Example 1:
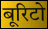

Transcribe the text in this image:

बूरिटो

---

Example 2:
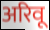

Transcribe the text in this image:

अरिवू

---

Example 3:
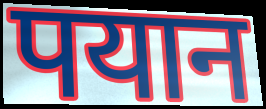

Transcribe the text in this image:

पयान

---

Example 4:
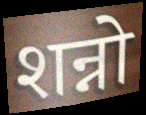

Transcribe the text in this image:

शन्नो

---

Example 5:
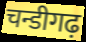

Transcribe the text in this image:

चन्डीगढ़